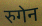
रुगेन